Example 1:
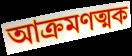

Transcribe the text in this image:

আক্রমণত্মক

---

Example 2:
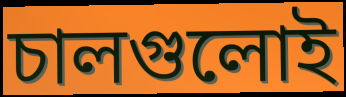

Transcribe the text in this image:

চালগুলোই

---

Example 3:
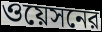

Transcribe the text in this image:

ওয়েসনের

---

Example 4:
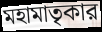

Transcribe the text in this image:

মহামাতৃকার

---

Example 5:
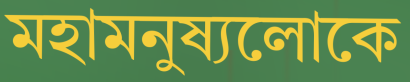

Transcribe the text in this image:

মহামনুষ্যলোকে